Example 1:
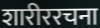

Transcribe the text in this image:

शारीररचना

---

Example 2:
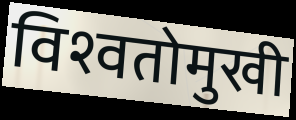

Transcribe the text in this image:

विश्वतोमुखी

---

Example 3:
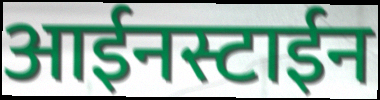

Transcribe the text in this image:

आईनस्टाईन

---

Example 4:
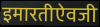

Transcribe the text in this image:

इमारतीऐवजी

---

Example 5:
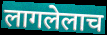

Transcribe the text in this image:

लागलेलाच